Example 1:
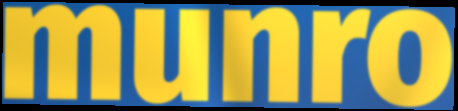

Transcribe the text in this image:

munro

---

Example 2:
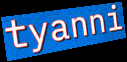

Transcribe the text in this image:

tyanni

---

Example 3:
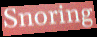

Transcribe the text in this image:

Snoring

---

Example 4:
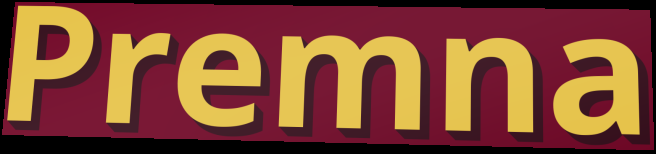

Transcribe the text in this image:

Premna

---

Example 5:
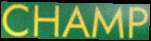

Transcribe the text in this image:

CHAMP